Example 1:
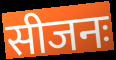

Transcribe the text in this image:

सीजनः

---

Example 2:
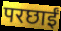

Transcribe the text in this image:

परछाईं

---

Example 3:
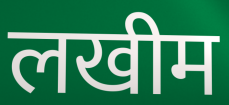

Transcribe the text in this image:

लखीम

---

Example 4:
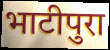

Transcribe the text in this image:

भाटीपुरा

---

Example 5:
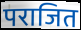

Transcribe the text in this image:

पराजित